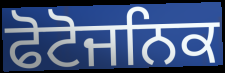
ਫੋਟੋਜਨਿਕ